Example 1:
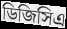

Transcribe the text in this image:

ডিজিসিএ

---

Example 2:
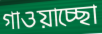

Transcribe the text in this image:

গাওয়াচ্ছো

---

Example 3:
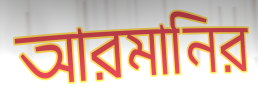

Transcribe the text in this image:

আরমানির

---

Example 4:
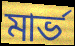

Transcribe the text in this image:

মার্ভ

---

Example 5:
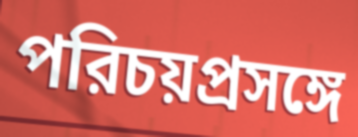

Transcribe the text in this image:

পরিচয়প্রসঙ্গে